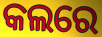
କଲରେ